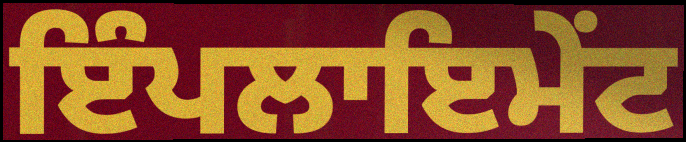
ਇੰਪਲਾਇਮੇਂਟ